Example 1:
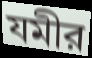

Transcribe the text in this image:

যমীর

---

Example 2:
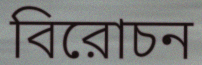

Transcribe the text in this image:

বিরোচন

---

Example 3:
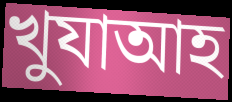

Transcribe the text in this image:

খুযাআহ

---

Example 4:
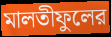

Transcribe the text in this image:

মালতীফুলের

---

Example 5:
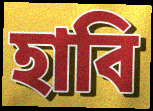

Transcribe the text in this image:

হাবি